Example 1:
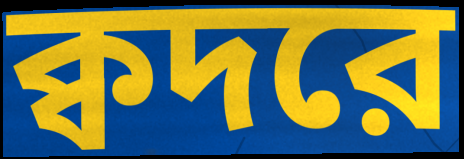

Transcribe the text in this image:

ক্বদরে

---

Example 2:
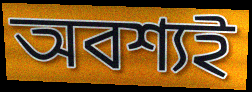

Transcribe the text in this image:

অবশ্যই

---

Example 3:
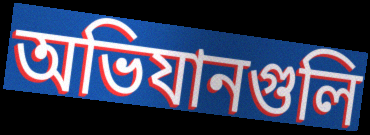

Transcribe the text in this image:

অভিযানগুলি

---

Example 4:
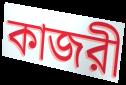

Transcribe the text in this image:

কাজরী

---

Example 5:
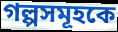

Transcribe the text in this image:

গল্পসমূহকে